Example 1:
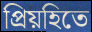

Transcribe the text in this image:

প্রিয়হিতে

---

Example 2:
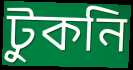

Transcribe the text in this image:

টুকনি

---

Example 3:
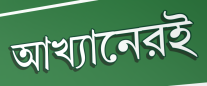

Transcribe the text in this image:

আখ্যানেরই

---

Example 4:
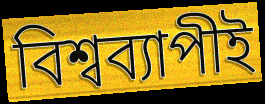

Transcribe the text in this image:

বিশ্বব্যাপীই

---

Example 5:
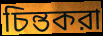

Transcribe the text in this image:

চিন্তকরা